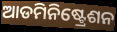
ଆଡମିନିଷ୍ଟ୍ରେଶନ